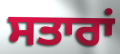
ਸਤਾਰਾਂ